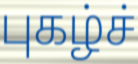
புகழ்ச்